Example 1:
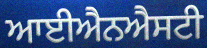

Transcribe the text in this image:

ਆਈਐਨਐਸਟੀ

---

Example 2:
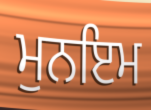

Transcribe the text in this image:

ਮੁਨਇਮ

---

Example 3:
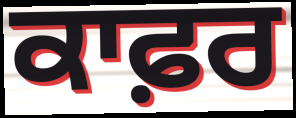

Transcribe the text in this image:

ਕਾਫ਼ਰ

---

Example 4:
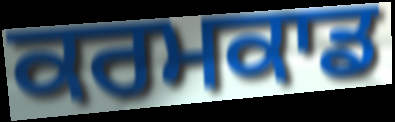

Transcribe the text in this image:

ਕਰਮਕਾਡ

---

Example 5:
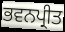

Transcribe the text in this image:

ਭਵਨਪ੍ਰੀਤ